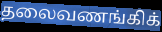
தலைவணங்கிக்